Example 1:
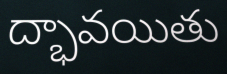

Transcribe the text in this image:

ద్భావయితు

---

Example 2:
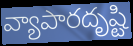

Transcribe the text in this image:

వ్యాపారదృష్టి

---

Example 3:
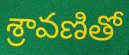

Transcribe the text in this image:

శ్రావణితో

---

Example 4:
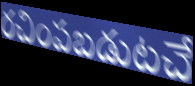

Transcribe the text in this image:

రచింపబడుటచే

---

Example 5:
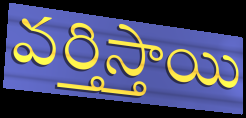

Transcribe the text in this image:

వర్తిస్తాయి